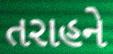
તરાહને